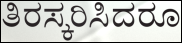
ತಿರಸ್ಕರಿಸಿದರೂ